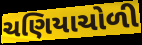
ચણિયાચોળી